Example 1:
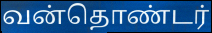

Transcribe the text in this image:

வன்தொண்டர்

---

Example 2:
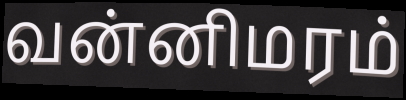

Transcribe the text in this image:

வன்னிமரம்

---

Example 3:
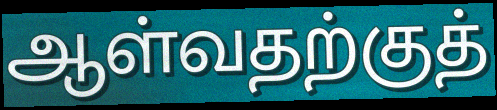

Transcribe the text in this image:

ஆள்வதற்குத்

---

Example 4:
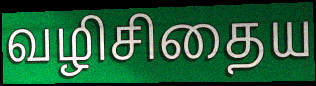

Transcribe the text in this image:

வழிசிதைய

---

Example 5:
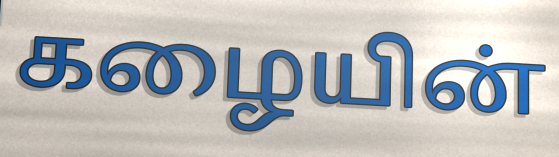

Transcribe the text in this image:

கழையின்